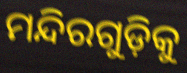
ମନ୍ଦିରଗୁଡ଼ିକୁ